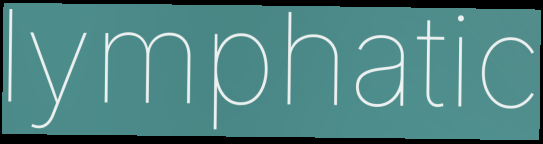
lymphatic